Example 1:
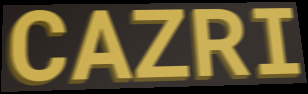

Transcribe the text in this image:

CAZRI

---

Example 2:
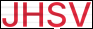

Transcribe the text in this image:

JHSV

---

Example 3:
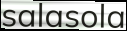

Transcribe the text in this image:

salasola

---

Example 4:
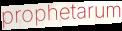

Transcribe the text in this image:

prophetarum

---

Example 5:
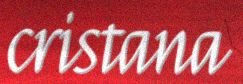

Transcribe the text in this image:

cristana